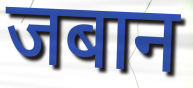
जबान